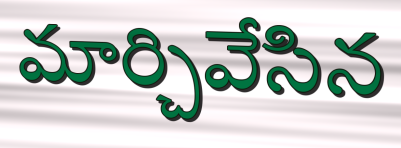
మార్చివేసిన